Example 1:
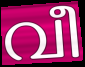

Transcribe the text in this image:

വീ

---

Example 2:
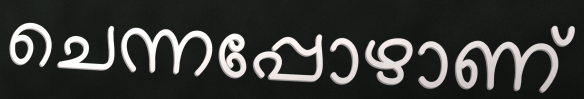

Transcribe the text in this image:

ചെന്നപ്പോഴാണ്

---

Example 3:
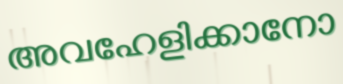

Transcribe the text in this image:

അവഹേളിക്കാനോ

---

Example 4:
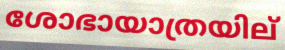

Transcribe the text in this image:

ശോഭായാത്രയില്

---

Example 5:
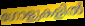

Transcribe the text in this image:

ഗോളുകളിൽ